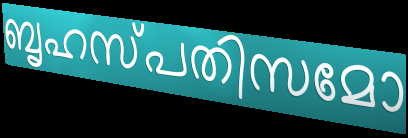
ബൃഹസ്പതിസമോ